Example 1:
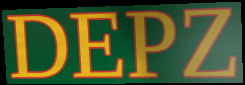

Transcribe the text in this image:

DEPZ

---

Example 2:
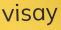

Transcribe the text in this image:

visay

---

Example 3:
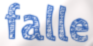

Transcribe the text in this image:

falle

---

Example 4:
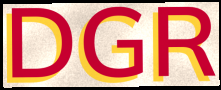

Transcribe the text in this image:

DGR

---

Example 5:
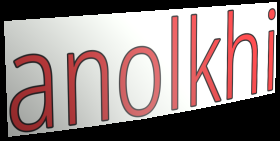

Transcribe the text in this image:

anolkhi